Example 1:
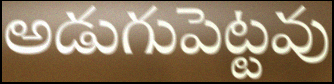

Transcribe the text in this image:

అడుగుపెట్టవు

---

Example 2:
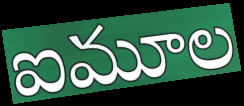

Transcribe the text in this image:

ఐమూల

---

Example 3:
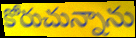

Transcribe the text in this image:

కోరుచున్నాను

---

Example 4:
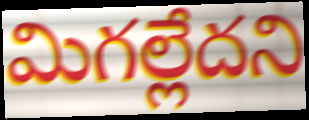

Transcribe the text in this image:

మిగల్లేదని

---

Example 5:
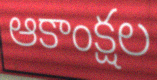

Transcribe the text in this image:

ఆకాంక్షల